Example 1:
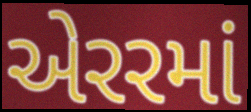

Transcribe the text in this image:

એરરમાં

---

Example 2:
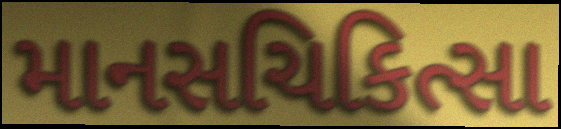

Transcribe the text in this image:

માનસચિકિત્સા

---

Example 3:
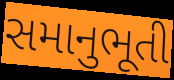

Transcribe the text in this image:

સમાનુભૂતી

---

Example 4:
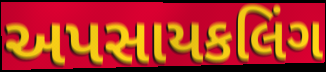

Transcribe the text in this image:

અપસાયકલિંગ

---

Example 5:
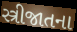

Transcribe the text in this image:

સ્ત્રીજાતના